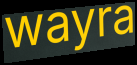
wayra